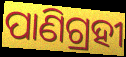
ପାଣିଗ୍ରହୀ